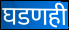
घडणही